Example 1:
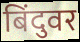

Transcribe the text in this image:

बिंदुवर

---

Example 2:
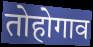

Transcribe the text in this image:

तोहोगाव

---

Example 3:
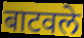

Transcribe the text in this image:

बाटवले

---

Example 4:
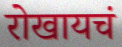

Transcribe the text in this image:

रोखायचं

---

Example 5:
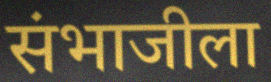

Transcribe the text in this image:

संभाजीला